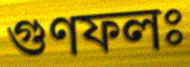
গুণফলঃ